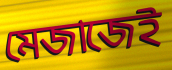
মেজাজেই